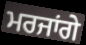
ਮਰਜਾਂਗੇ